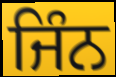
ਜਿੰਨ